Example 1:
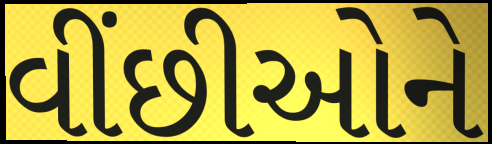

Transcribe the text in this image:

વીંછીઓને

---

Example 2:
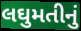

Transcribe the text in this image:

લઘુમતીનું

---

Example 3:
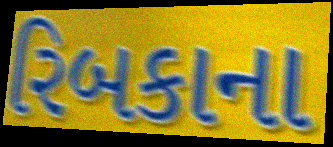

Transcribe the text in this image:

રિબકાના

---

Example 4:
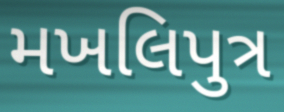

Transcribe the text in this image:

મખલિપુત્ર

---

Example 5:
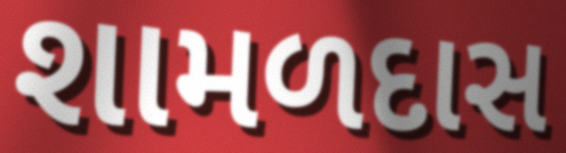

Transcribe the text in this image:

શામળદાસ